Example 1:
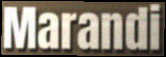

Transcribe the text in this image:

Marandi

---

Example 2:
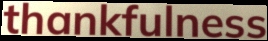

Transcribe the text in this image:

thankfulness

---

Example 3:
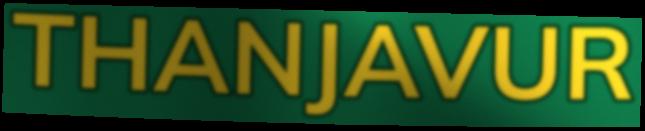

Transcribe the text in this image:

THANJAVUR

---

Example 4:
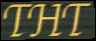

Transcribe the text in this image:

THT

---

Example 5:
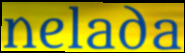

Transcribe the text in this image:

nelada